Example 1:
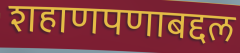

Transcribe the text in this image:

शहाणपणाबद्दल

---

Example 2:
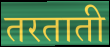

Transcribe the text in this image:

तरताती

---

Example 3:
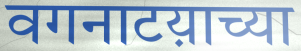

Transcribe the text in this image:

वगनाटय़ाच्या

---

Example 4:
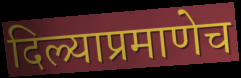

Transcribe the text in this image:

दिल्याप्रमाणेच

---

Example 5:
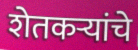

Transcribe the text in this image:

शेतकर्‍यांचे